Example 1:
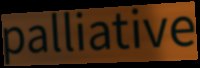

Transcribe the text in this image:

palliative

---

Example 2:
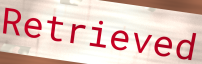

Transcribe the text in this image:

Retrieved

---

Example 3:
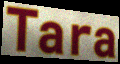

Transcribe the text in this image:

Tara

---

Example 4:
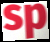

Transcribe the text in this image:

sp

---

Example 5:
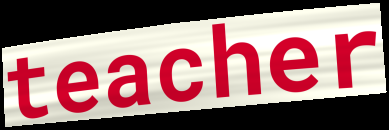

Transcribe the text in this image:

teacher